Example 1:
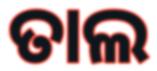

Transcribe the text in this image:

ତାଲ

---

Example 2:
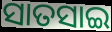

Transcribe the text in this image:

ସାତସାଇ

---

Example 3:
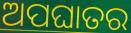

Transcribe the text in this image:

ଅପଘାତର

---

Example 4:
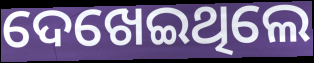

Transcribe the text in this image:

ଦେଖେଇଥିଲେ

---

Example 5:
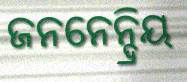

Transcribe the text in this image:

ଜନନେନ୍ଦ୍ରିୟ